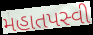
મહાતપસ્વી